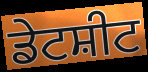
ਡੇਟਸ਼ੀਟ